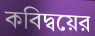
কবিদ্বয়ের